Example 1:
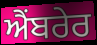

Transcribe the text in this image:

ਐਂਬਰੇਰ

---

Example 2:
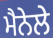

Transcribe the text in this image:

ਮੈਨੇਲੇ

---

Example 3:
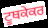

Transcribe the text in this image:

ਟੂਥਕੇਕਰ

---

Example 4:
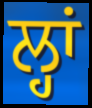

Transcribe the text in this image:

ਲ੍ਹਾਂ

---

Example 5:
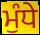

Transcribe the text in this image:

ਮੁੰਧੇ